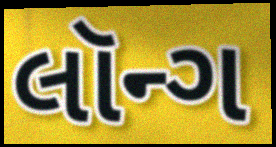
લૉન્ગ